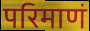
परिमाणं